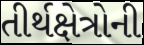
તીર્થક્ષેત્રોની